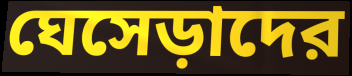
ঘেসেড়াদের